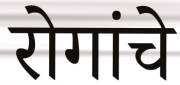
रोगांचे